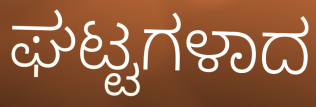
ಘಟ್ಟಗಳಾದ